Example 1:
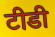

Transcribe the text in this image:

टीडी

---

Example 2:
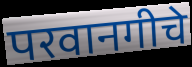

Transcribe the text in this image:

परवानगीचे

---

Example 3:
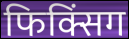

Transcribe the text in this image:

फिक्सिंग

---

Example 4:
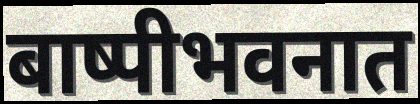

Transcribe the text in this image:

बाष्पीभवनात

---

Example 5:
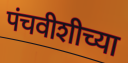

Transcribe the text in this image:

पंचवीशीच्या